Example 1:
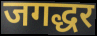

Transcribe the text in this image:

जगद्धर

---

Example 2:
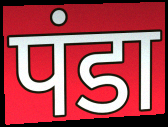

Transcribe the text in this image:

पंडा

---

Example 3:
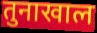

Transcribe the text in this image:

तुनाखाल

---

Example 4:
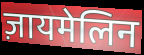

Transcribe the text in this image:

ज़ायमेलिन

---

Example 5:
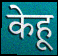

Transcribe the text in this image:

केहू